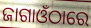
ଜାଗାଓଁଠାରେ